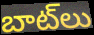
బాట్‌లు